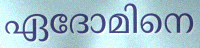
ഏദോമിനെ